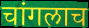
चांगलाच